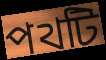
পথটি